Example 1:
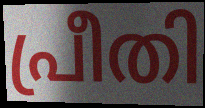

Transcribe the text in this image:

പ്രീതി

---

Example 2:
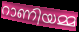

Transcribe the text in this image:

റാണിയമ്മ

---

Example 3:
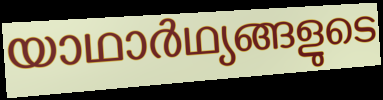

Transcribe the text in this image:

യാഥാർഥ്യങ്ങളുടെ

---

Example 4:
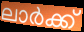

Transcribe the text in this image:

ലാർക്ക്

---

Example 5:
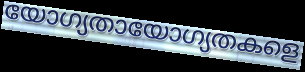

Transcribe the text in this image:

യോഗ്യതായോഗ്യതകളെ